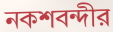
নকশবন্দীর